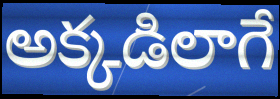
అక్కడిలాగే